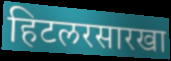
हिटलरसारखा